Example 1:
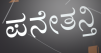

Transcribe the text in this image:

ಪನೇತನ್ತಿ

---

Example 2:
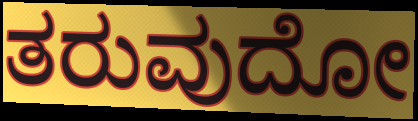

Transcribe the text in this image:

ತರುವುದೋ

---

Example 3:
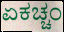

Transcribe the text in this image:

ಏಕಚ್ಚಂ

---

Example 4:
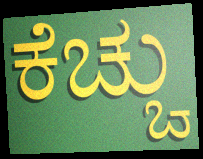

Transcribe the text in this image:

ಕೆಚ್ಚು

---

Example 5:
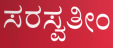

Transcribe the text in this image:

ಸರಸ್ವತೀಂ